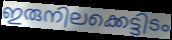
ഇരുനിലക്കെട്ടിടം